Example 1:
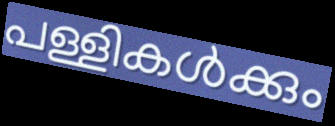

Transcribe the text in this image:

പള്ളികൾക്കും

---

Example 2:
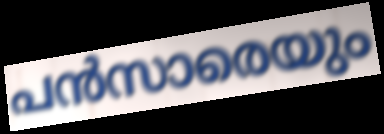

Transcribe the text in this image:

പൻസാരെയും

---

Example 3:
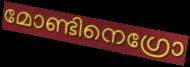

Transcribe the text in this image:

മോണ്ടിനെഗ്രോ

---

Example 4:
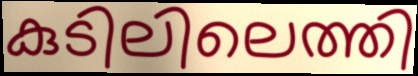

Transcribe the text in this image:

കുടിലിലെത്തി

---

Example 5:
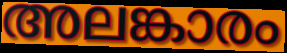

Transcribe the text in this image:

അലങ്കാരം